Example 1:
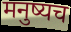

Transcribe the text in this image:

मनुष्यच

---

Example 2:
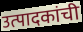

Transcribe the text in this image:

उत्पादकांची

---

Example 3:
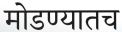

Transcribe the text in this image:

मोडण्यातच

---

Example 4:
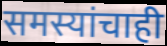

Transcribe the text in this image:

समस्यांचाही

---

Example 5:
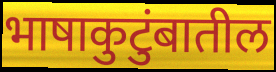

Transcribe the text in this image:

भाषाकुटुंबातील